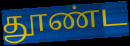
தூண்ட